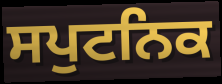
ਸਪੁਟਨਿਕ